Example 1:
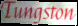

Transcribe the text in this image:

Tungston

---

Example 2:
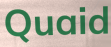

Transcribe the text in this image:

Quaid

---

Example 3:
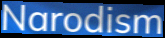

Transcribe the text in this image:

Narodism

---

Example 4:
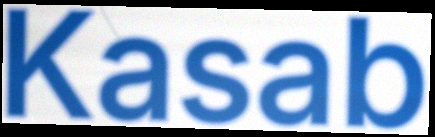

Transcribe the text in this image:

Kasab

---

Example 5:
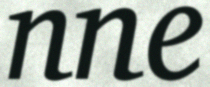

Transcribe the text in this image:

nne